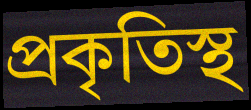
প্রকৃতিস্থ